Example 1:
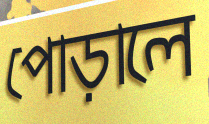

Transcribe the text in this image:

পোড়ালে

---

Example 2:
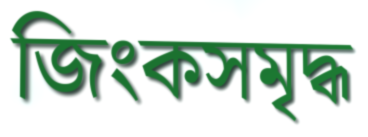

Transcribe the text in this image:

জিংকসমৃদ্ধ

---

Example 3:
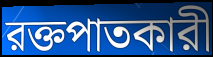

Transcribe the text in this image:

রক্তপাতকারী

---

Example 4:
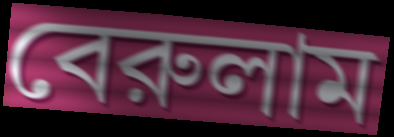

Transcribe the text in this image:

বেরুলাম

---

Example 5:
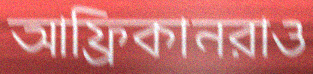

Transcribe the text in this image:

আফ্রিকানরাও